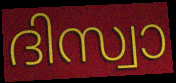
ദിസ്വാ